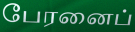
பேரனைப்